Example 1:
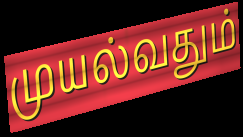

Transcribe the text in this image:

முயல்வதும்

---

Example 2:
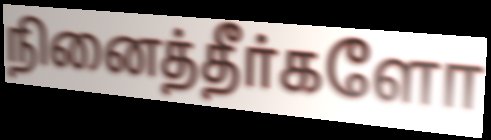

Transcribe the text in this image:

நினைத்தீர்களோ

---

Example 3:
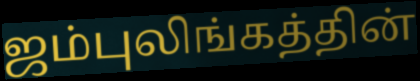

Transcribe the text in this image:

ஜம்புலிங்கத்தின்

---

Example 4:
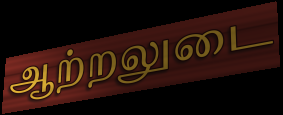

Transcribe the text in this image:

ஆற்றலுடை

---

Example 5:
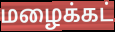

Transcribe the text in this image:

மழைக்கட்